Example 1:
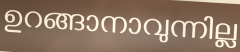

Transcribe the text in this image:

ഉറങ്ങാനാവുന്നില്ല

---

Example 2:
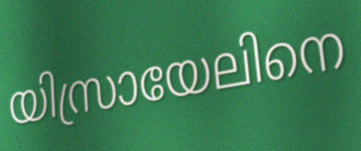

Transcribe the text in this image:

യിസ്രായേലിനെ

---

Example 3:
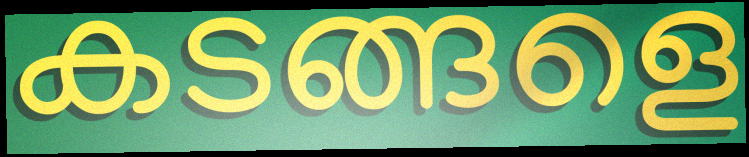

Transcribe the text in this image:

കടങ്ങളെ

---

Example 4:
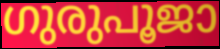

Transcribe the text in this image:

ഗുരുപൂജാ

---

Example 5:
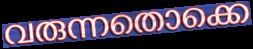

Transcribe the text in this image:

വരുന്നതൊക്കെ